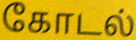
கோடல்